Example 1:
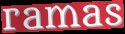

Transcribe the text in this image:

ramas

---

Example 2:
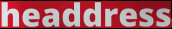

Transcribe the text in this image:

headdress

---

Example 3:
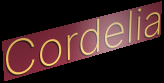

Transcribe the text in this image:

Cordelia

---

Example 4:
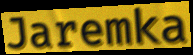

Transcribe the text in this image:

Jaremka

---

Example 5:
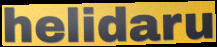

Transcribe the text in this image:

helidaru